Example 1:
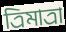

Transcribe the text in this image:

ত্রিমাত্রা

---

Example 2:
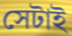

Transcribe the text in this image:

সেটাই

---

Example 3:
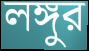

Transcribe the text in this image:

লঙ্গুর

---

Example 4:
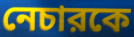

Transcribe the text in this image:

নেচারকে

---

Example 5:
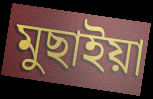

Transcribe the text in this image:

মুছাইয়া